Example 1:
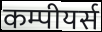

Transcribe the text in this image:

कम्पीयर्स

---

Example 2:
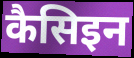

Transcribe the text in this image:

कैसिइन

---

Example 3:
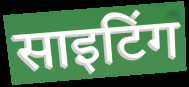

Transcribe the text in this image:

साइटिंग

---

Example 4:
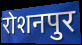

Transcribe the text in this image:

रोशनपुर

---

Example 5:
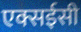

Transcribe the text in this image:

एक्सईसी